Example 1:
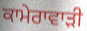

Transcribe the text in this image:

ਕਾਮੇਰਾਵਾੜੀ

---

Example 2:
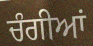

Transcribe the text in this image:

ਚੰਗੀਆਂ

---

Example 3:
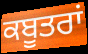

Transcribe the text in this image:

ਕਬੂਤਰਾਂ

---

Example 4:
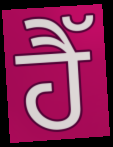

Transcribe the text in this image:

ਹੈੱ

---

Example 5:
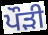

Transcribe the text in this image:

ਪੌੜੀ